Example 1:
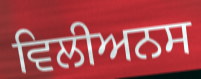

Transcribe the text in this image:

ਵਿਲੀਅਨਸ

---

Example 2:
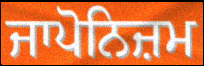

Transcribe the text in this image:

ਜਾਪੋਨਿਜ਼ਮ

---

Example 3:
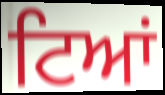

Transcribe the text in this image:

ਟਿਆਂ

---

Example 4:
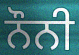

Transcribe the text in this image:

ਨੌਨੀ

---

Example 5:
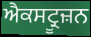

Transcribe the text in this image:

ਐਕਸਟ੍ਰੂਜ਼ਨ